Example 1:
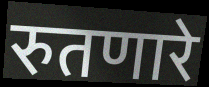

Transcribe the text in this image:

रुतणारे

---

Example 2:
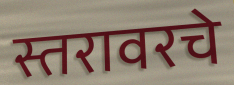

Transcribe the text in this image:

स्तरावरचे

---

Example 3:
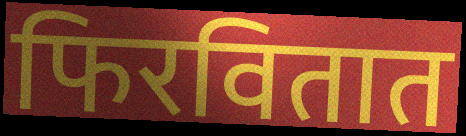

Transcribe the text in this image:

फिरवितात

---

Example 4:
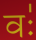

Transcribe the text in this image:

वः॑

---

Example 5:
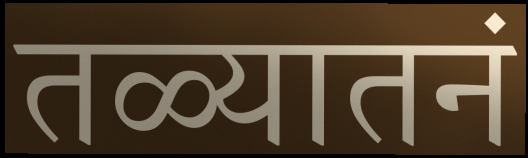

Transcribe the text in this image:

तळ्यातनं